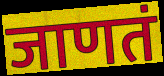
जाणतं